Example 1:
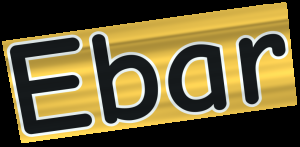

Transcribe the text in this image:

Ebar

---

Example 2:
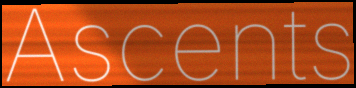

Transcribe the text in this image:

Ascents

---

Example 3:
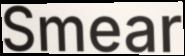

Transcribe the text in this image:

Smear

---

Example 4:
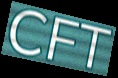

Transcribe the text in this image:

CFT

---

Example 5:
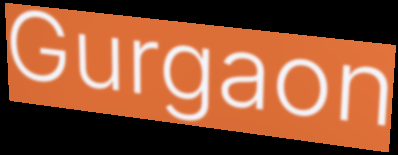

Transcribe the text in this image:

Gurgaon